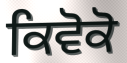
ਕਿਵੋਕੋ